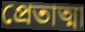
প্রেতাত্মা